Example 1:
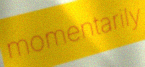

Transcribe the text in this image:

momentarily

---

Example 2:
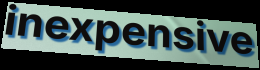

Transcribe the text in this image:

inexpensive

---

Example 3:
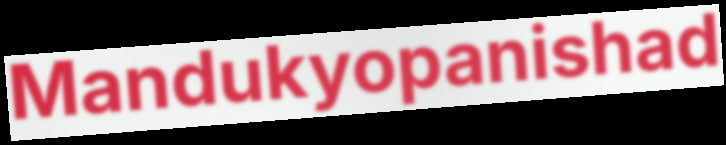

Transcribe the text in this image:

Mandukyopanishad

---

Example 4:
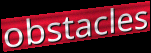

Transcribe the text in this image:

obstacles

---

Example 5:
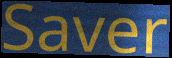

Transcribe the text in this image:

Saver